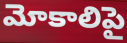
మోకాలిపై